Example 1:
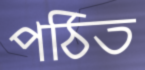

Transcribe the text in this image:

পঠিত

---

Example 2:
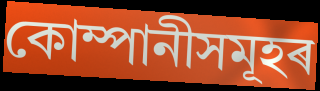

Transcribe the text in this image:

কোম্পানীসমূহৰ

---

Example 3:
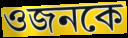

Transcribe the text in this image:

ওজনকে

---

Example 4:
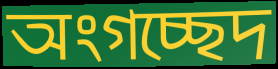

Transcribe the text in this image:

অংগচ্ছেদ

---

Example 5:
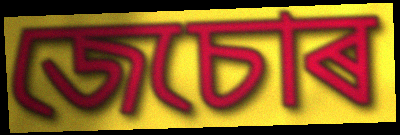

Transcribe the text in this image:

জেচোৰ